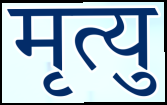
मृत्यु